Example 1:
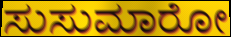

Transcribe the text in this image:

ಸುಸುಮಾರೋ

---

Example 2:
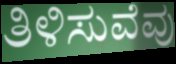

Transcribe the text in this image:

ತಿಳಿಸುವೆವು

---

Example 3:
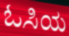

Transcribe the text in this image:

ಓಸಿಯ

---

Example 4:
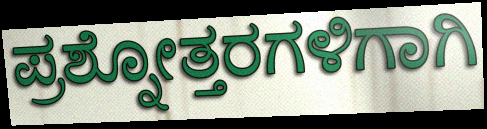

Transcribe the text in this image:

ಪ್ರಶ್ನೋತ್ತರಗಳಿಗಾಗಿ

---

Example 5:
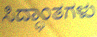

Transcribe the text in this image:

ಸಿದ್ಧಾಂತಗಳು